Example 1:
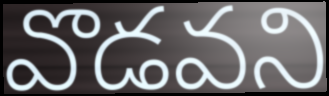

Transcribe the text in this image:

వొడవని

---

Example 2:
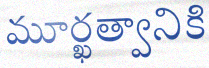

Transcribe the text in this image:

మూర్ఖత్వానికి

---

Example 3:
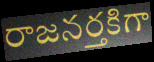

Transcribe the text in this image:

రాజనర్తకిగా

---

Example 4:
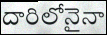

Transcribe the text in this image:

దారిలోనైనా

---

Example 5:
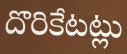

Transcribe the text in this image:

దొరికేటట్లు